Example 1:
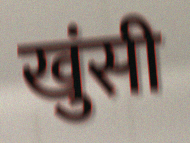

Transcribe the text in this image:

खुंसी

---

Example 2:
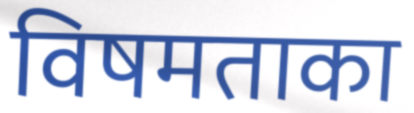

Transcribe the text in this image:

विषमताका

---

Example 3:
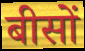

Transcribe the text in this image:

बीसों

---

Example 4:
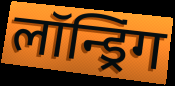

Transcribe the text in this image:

लॉन्ड्रिंग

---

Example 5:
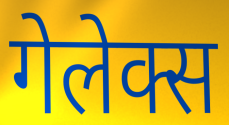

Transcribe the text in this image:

गेलेक्स